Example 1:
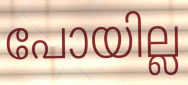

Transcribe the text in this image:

പോയില്ല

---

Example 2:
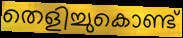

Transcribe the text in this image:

തെളിച്ചുകൊണ്ട്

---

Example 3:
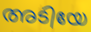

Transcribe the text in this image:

അടിയേ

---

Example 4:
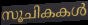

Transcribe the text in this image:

സൂചികകൾ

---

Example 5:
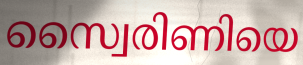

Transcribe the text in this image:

സ്വൈരിണിയെ